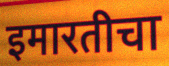
इमारतीचा